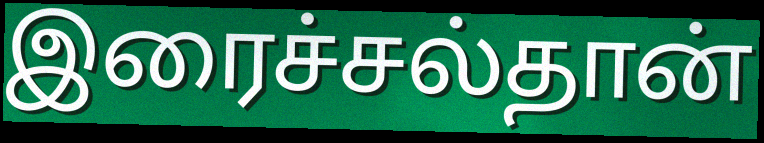
இரைச்சல்தான்